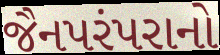
જૈનપરંપરાનો